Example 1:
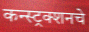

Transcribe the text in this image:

कन्स्ट्रक्शनचे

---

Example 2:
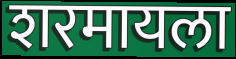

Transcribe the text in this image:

शरमायला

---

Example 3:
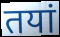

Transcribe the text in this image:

तयां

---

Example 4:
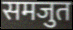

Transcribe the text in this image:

समजुत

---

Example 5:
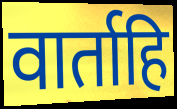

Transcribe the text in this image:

वार्ताहि